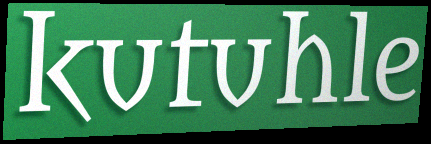
kutuhle